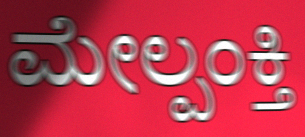
ಮೇಲ್ಪಂಕ್ತಿ